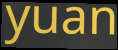
yuan